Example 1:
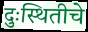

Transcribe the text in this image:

दुःस्थितीचे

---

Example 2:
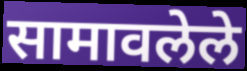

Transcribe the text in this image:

सामावलेले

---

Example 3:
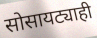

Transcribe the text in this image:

सोसायट्याही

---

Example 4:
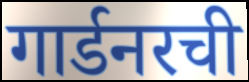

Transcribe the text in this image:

गार्डनरची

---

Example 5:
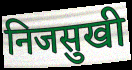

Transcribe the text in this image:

निजसुखी